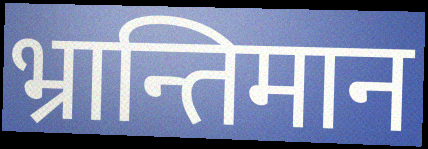
भ्रान्तिमान